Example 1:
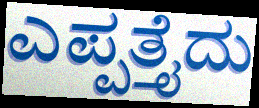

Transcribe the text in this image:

ಎಪ್ಪತ್ತೈದು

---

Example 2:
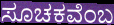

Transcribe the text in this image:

ಸೂಚಕವೆಂಬ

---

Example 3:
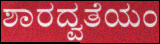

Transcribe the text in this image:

ಶಾರದ್ವತೆಯಂ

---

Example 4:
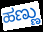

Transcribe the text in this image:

ಹಣ್ಣು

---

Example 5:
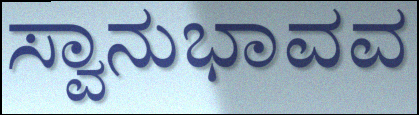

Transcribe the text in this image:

ಸ್ವಾನುಭಾವವ